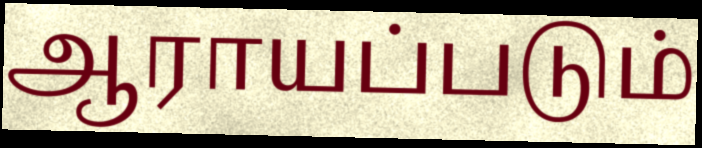
ஆராயப்படும்